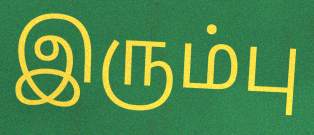
இரும்பு